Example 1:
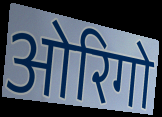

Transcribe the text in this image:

ओरिगो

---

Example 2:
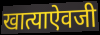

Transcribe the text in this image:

खात्याऐवजी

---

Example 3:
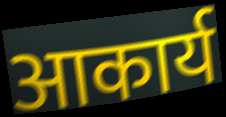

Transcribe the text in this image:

आकार्य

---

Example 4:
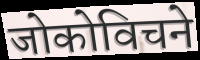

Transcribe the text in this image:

जोकोविचने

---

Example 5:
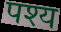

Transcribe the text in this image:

पश्य